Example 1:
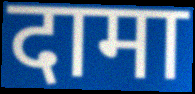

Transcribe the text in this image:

दामा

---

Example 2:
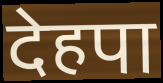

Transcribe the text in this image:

देहपा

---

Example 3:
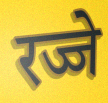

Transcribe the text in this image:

रज्जे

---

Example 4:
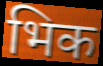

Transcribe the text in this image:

भिक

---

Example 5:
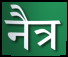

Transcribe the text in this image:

नैत्र